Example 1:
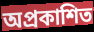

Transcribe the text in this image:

অপ্রকাশিত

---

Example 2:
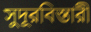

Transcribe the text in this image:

সুদূরবিস্তারী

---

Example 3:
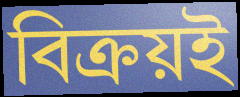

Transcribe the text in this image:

বিক্রয়ই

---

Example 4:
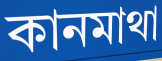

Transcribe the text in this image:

কানমাথা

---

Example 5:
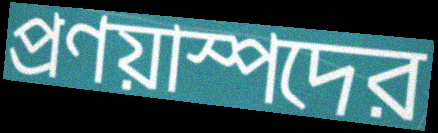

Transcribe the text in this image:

প্রণয়াস্পদের